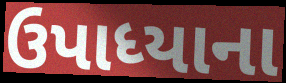
ઉપાધ્યાના